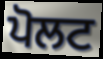
ਪੋਲਟ